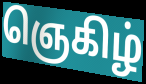
ஞெகிழ்